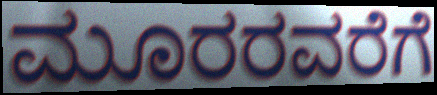
ಮೂರರವರೆಗೆ